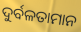
ଦୁର୍ବଳତାମାନ